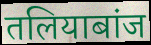
तलियाबांज